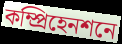
কম্প্রিহেনশনে